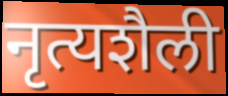
नृत्यशैली